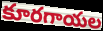
కూరగాయల